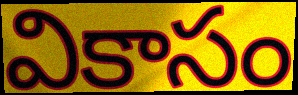
వికాసం